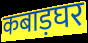
कबाड़घर